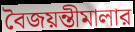
বৈজয়ন্তীমালার